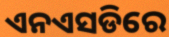
ଏନଏସଡିରେ